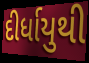
દીર્ધાયુથી